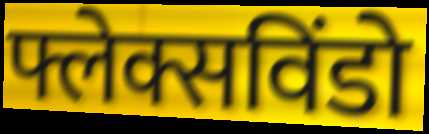
फ्लेक्सविंडो